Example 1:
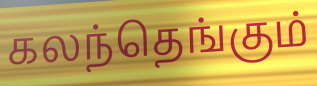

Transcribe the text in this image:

கலந்தெங்கும்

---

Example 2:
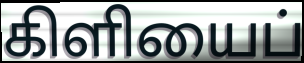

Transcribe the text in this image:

கிளியைப்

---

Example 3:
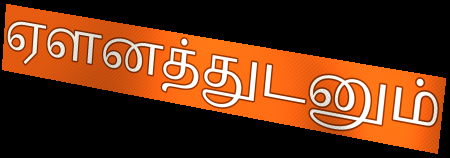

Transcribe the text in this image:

ஏளனத்துடனும்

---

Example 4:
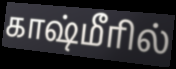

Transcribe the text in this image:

காஷ்மீரில்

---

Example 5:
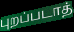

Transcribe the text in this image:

புறப்படாத்